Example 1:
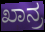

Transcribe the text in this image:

ಖಾನ್ರ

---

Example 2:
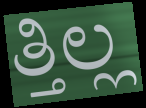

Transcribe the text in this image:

ತ್ತಿಲ್ಲ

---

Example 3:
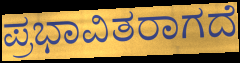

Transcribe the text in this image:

ಪ್ರಭಾವಿತರಾಗದೆ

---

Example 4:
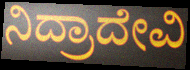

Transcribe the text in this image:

ನಿದ್ರಾದೇವಿ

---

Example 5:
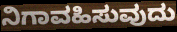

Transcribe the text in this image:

ನಿಗಾವಹಿಸುವುದು